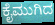
ಕೈಮುಗಿದ